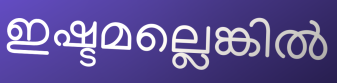
ഇഷ്ടമല്ലെങ്കിൽ